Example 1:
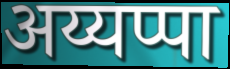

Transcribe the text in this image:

अय्यप्पा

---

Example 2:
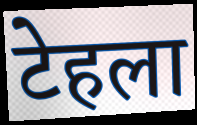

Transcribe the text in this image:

टेहला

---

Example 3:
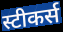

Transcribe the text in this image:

स्टीकर्स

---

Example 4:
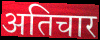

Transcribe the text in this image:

अतिचार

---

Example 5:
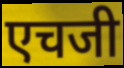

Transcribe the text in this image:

एचजी